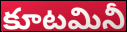
కూటమినీ